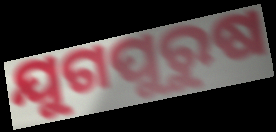
ଯୁଗପୁରୁଷ